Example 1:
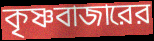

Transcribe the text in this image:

কৃষ্ণবাজারের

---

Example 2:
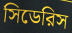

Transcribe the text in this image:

সিডেরিস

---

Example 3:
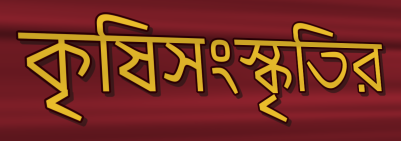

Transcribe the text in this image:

কৃষিসংস্কৃতির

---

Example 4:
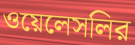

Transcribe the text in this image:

ওয়েলেসলির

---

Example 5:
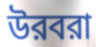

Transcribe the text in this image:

উরবরা